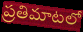
ప్రతిమాటలో